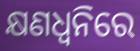
କ୍ଷଣଧ୍ୱନିରେ